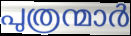
പുത്രന്മാർ